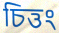
চিত্তং